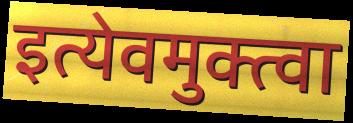
इत्येवमुक्त्वा